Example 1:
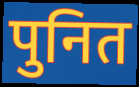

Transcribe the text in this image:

पुनित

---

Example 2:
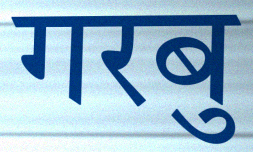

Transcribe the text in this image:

गरबु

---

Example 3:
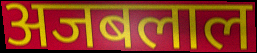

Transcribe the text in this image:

अजबलाल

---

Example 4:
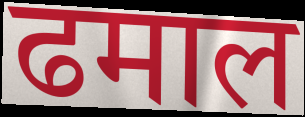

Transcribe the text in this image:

ढमाल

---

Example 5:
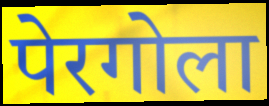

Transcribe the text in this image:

पेरगोला